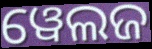
ୱେଲଜ